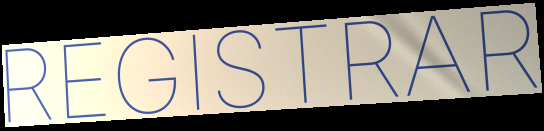
REGISTRAR